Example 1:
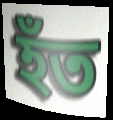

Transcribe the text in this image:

হঁত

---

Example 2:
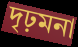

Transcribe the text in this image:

দৃঢ়মনা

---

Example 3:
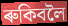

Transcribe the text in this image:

ৰুকিবলৈ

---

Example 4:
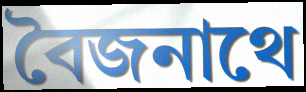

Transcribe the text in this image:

বৈজনাথে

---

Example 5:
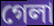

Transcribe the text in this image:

গেলা